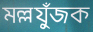
মল্লযুঁজক